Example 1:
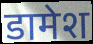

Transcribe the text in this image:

डामेश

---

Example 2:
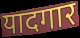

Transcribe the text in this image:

यादगार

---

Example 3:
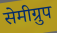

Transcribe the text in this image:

सेमीग्रुप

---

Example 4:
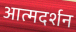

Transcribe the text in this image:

आत्मदर्शन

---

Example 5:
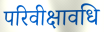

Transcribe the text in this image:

परिवीक्षावधि